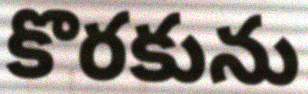
కొరకును